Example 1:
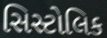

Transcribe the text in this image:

સિસ્ટોલિક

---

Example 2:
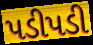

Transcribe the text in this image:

પડીપડી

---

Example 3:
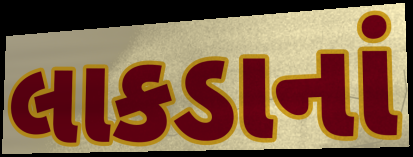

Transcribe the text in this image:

લાકડાનાં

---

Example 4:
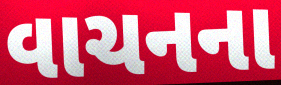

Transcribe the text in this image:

વાચનના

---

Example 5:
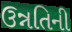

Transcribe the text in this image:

ઉન્નતિની